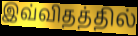
இவ்விதத்தில்